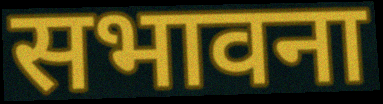
सभावना